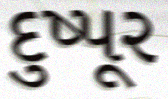
દુષ્પૂર